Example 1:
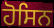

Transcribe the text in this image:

ਹੋਸਿਨ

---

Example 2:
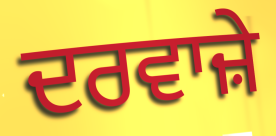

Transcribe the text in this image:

ਦਰਵਾਜ਼ੇ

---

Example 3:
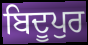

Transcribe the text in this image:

ਬਿਦੂਪੁਰ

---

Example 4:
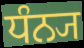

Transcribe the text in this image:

ਧੰਨ੍ਯ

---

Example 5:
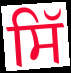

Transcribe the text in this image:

ਸਿੱ